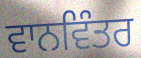
ਵਾਨਵਿੰਤਰ